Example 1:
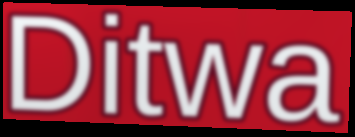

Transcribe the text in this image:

Ditwa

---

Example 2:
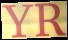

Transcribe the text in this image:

YR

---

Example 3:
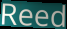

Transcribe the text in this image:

Reed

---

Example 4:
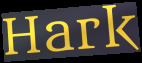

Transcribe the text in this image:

Hark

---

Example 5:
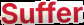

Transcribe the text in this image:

Suffer